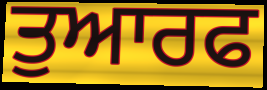
ਤੁਆਰਫ